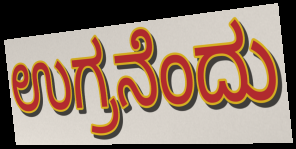
ಉಗ್ರನೆಂದು